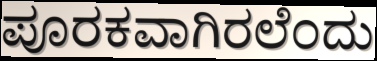
ಪೂರಕವಾಗಿರಲೆಂದು